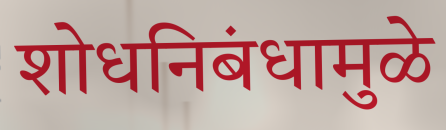
शोधनिबंधामुळे